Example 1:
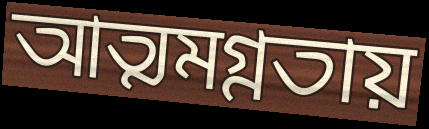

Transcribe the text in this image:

আত্মমগ্নতায়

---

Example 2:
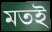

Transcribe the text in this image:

মতই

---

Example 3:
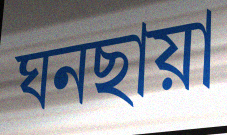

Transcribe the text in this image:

ঘনছায়া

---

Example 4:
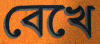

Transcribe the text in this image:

বেখে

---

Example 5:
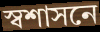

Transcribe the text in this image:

স্বশাসনে